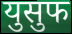
युसुफ